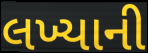
લખ્યાની